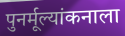
पुनर्मूल्यांकनाला